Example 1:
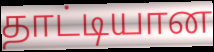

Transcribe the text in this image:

தாட்டியான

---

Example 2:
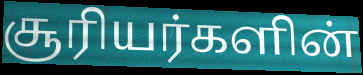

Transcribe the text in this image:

சூரியர்களின்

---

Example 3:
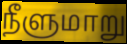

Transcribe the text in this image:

நீளுமாறு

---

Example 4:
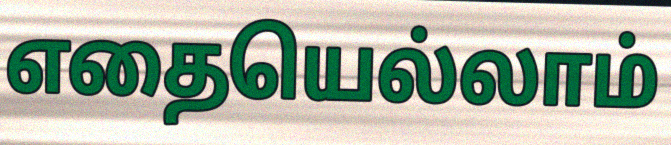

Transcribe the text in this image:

எதையெல்லாம்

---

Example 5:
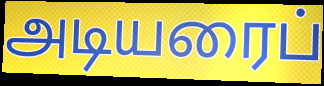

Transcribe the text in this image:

அடியரைப்